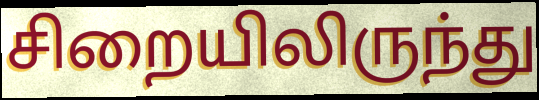
சிறையிலிருந்து